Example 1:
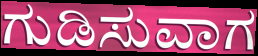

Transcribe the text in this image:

ಗುಡಿಸುವಾಗ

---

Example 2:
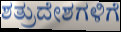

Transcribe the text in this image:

ಶತ್ರುದೇಶಗಳಿಗೆ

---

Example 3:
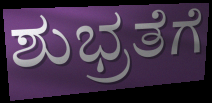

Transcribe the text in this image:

ಶುಭ್ರತೆಗೆ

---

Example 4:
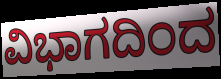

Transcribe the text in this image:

ವಿಭಾಗದಿಂದ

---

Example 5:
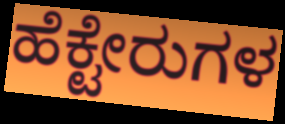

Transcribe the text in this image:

ಹೆಕ್ಟೇರುಗಳ